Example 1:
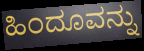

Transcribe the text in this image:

ಹಿಂದೂವನ್ನು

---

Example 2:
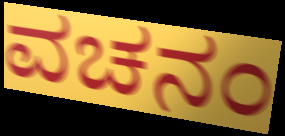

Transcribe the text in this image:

ವಚನಂ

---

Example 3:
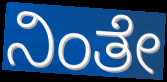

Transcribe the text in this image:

ನಿಂತೇ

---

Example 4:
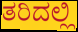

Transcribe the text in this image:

ತರಿದಲ್ಲಿ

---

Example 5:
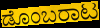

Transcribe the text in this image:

ಡೊಂಬರಾಟ